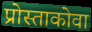
प्रोस्ताकोवा